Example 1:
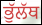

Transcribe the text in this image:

ਭੁੱਲੱਥ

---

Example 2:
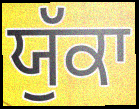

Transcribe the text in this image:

ਯੁੱਕਾ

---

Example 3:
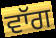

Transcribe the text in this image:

ਵਾੱਗ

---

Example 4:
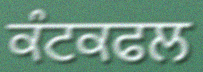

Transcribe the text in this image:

ਕੰਟਕਫਲ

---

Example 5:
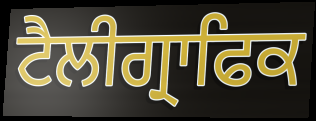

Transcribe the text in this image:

ਟੈਲੀਗ੍ਰਾਫਿਕ